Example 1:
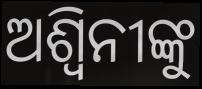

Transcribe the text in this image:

ଅଶ୍ୱିନୀଙ୍କୁ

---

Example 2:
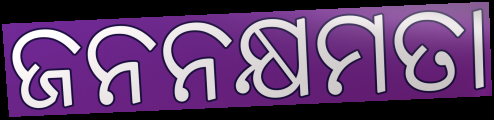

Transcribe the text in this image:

ଜନନକ୍ଷମତା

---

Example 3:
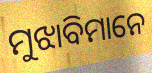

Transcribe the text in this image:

ମୁଝାବିମାନେ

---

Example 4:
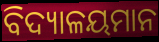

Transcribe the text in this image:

ବିଦ୍ୟାଳୟମାନ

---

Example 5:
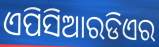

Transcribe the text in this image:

ଏପିସିଆରଡିଏର